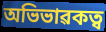
অভিভাৱকত্ব